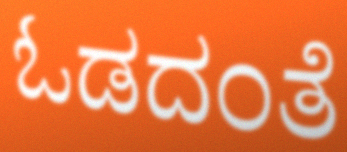
ಓಡದಂತೆ